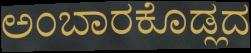
ಅಂಬಾರಕೊಡ್ಲದ